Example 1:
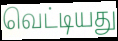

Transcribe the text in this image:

வெட்டியது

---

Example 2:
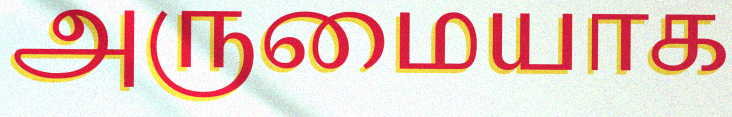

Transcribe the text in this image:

அருமையாக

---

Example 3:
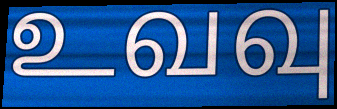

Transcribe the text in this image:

உவவு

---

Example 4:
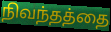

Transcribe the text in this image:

நிவந்தத்தை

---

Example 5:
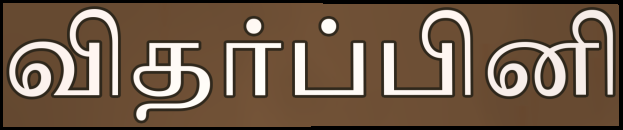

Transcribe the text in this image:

விதர்ப்பினி